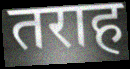
तराह